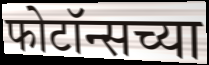
फोटॉन्सच्या